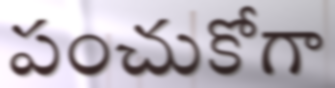
పంచుకోగా